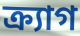
ক্র্যাগ